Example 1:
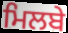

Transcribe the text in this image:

ਮਿਲਬੇ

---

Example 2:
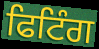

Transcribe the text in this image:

ਫਿਟਿੰਗ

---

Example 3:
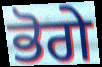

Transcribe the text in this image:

ਭੋਗੇ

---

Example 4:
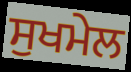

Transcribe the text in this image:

ਸੁਖਮੇਲ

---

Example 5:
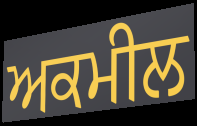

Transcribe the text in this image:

ਅਕਮੀਲ